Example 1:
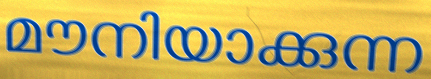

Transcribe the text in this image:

മൗനിയാക്കുന്ന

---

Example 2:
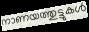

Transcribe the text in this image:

നാണയത്തുട്ടുകൾ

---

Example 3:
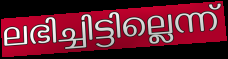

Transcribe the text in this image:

ലഭിച്ചിട്ടില്ലെന്ന്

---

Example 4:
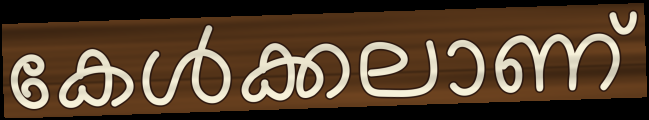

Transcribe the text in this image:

കേൾക്കലാണ്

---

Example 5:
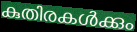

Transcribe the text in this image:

കുതിരകൾക്കും